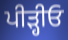
ਪੀੜ੍ਹੀਓ